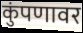
कुंपणावर